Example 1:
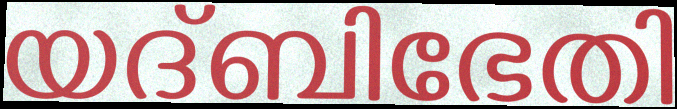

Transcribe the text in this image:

യദ്ബിഭേതി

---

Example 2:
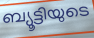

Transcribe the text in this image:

ബ്യൂട്ടിയുടെ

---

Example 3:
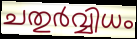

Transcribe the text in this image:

ചതുർവ്വിധം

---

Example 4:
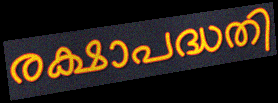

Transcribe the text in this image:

രക്ഷാപദ്ധതി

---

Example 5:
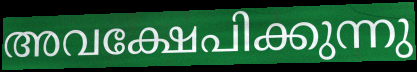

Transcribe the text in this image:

അവക്ഷേപിക്കുന്നു